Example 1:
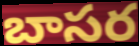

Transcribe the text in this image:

బాసర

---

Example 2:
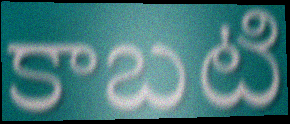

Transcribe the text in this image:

కాబటి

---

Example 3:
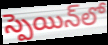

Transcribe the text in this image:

స్పెయిన్‌లో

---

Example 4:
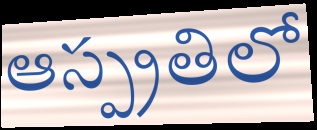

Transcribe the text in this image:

ఆస్ప్రతిలో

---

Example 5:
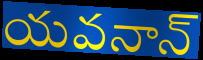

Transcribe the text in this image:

యవనాన్